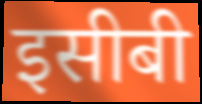
इसीबी